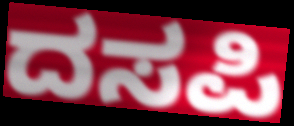
ದಸಪಿ